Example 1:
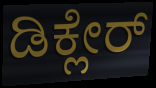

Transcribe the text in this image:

ಡಿಕ್ಲೇರ್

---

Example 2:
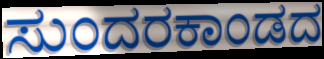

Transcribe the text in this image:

ಸುಂದರಕಾಂಡದ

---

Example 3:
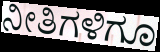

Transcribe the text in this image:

ನೀತಿಗಳಿಗೂ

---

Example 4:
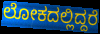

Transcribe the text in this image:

ಲೋಕದಲ್ಲಿದ್ದರೆ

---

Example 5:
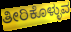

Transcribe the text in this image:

ತೀರಿಕೊಳ್ಳುವ